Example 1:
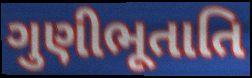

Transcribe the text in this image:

ગુણીભૂતાતિ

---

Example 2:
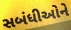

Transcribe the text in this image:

સબંધીઓને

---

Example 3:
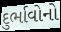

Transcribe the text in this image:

દુર્ભાવોનો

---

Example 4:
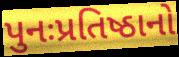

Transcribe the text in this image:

પુનઃપ્રતિષ્ઠાનો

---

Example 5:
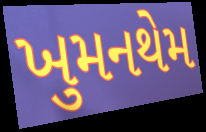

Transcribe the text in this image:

ખુમનથેમ